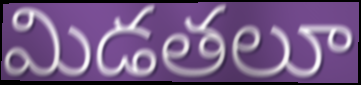
మిడతలూ